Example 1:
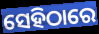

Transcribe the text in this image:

ସେହିଠାରେ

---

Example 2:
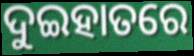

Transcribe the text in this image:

ଦୁଇହାତରେ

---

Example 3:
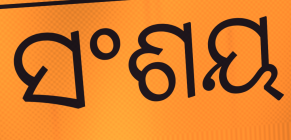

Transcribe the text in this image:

ସଂଶୟ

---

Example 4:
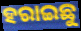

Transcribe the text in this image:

ହରାଇଛୁ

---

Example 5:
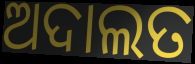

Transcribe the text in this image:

ଅଦାଲତ